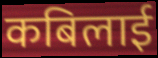
कबिलाई